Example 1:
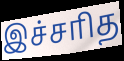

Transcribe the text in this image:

இச்சரித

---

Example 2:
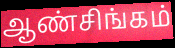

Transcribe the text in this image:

ஆண்சிங்கம்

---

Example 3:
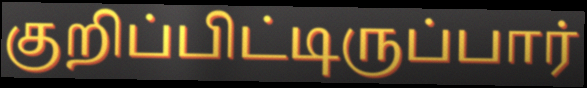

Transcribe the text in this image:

குறிப்பிட்டிருப்பார்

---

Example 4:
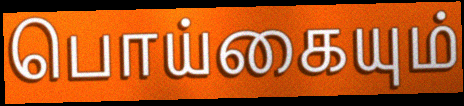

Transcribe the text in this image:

பொய்கையும்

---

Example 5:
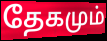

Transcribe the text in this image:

தேகமும்